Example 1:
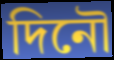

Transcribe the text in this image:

দিনৌ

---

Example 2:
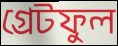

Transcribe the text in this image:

গ্ৰেটফুল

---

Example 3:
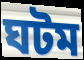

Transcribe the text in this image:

ঘটম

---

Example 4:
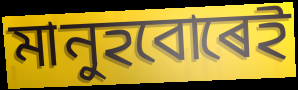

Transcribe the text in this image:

মানুহবোৰেই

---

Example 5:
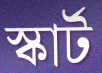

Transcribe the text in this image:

স্কাৰ্ট